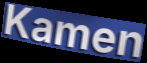
Kamen